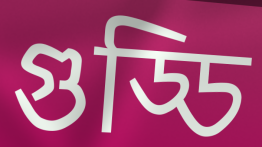
গুড্ডি